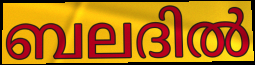
ബലദിൽ